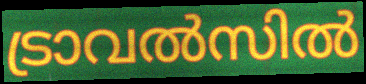
ട്രാവൽസിൽ